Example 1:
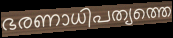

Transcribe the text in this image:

ഭരണാധിപത്യത്തെ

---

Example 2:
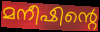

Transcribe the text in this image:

മനീഷിന്റെ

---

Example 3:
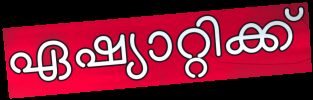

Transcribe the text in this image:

ഏഷ്യാറ്റിക്ക്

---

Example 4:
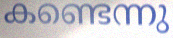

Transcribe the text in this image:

കണ്ടെന്നു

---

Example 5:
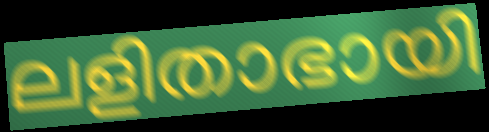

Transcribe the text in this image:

ലളിതാഭായി